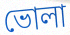
ভোলা